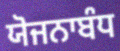
ਯੋਜਨਾਬੰਧ